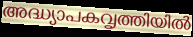
അദ്ധ്യാപകവൃത്തിയിൽ